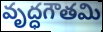
వృద్ధగౌతమి